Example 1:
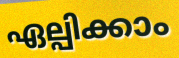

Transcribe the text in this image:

ഏല്പിക്കാം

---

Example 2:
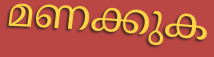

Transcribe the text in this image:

മണക്കുക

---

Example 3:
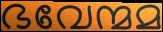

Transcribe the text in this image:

ഭവേന്മമ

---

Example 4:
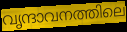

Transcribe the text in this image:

വൃന്ദാവനത്തിലെ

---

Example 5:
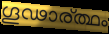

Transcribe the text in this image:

ഗൂഢാര്ത്ഥം